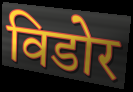
विडोर